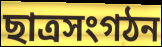
ছাত্রসংগঠন